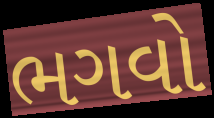
ભગવો